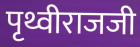
पृथ्वीराजजी